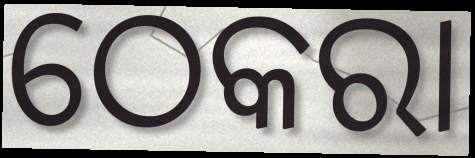
ଠେକରା